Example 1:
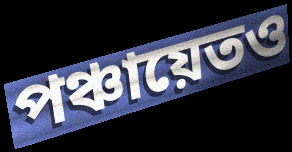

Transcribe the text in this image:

পঞ্চায়েতও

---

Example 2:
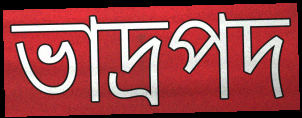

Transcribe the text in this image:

ভাদ্রপদ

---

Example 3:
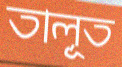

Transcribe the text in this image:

তালূত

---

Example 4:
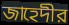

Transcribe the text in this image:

জাহেদীর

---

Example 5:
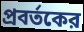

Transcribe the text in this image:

প্রবর্তকের